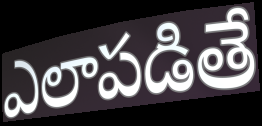
ఎలాపడితే